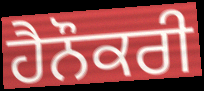
ਹੈਨੌਕਰੀ